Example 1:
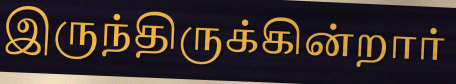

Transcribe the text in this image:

இருந்திருக்கின்றார்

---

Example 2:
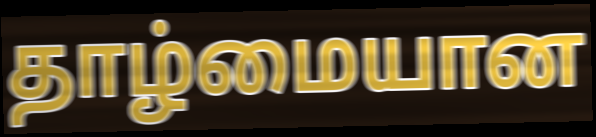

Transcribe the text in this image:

தாழ்மையான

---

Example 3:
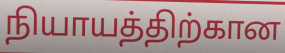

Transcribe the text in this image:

நியாயத்திற்கான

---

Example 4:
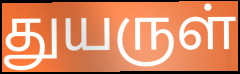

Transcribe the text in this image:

துயருள்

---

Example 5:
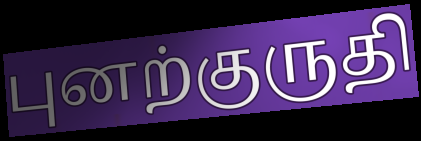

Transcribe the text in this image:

புனற்குருதி